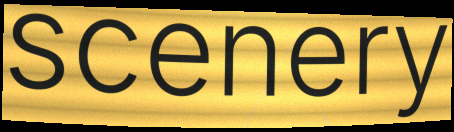
scenery